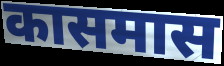
कासमास